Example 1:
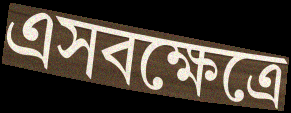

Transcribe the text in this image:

এসবক্ষেত্রে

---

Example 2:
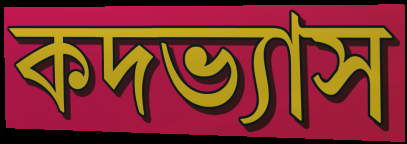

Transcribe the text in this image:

কদভ্যাস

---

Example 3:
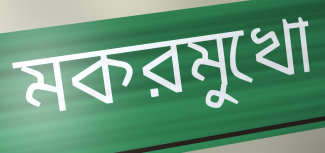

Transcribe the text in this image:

মকরমুখো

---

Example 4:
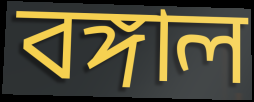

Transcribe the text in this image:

বঙ্গাল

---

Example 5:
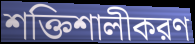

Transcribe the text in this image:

শক্তিশালীকরণ